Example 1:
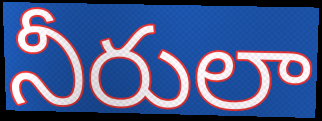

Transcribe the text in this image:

నీరులా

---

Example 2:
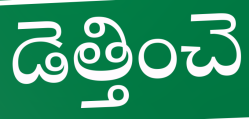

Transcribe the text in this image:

డెత్తించె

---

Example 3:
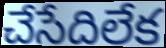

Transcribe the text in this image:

చేసేదిలేక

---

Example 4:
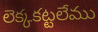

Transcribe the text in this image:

లెక్కకట్టలేము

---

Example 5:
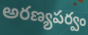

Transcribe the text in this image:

అరణ్యపర్వం